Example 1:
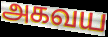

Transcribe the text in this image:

அகவய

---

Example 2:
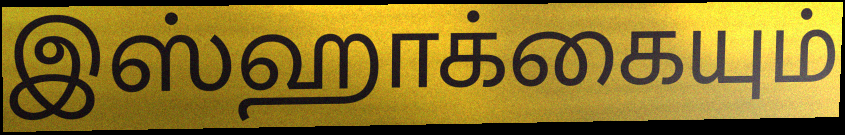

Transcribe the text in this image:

இஸ்ஹாக்கையும்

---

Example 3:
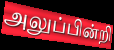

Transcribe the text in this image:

அலுப்பின்றி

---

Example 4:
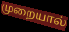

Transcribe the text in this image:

முறையால்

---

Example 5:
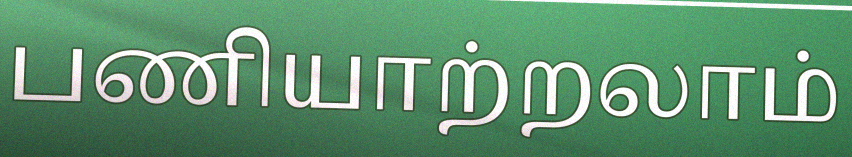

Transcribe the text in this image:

பணியாற்றலாம்